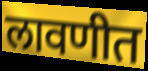
लावणीत